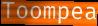
Toompea